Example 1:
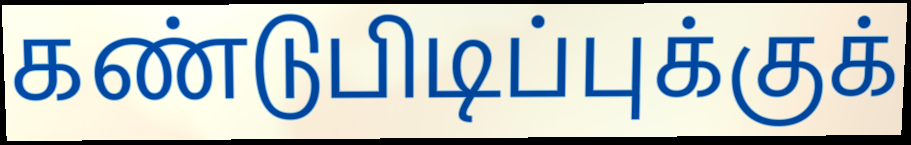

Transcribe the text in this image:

கண்டுபிடிப்புக்குக்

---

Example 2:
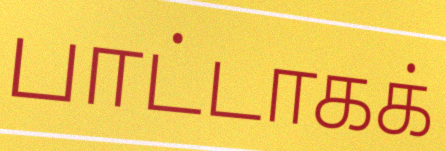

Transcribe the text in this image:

பாட்டாகக்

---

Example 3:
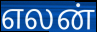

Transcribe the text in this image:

எலன்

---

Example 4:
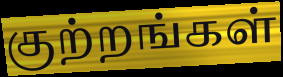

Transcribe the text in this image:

குற்றங்கள்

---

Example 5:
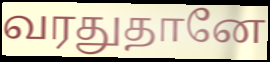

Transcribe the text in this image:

வரதுதானே